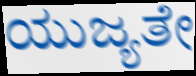
ಯುಜ್ಯತೇ